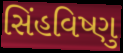
સિંહવિષ્ણુ